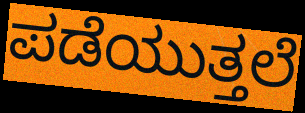
ಪಡೆಯುತ್ತಲೆ